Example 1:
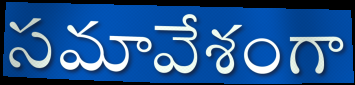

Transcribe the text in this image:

సమావేశంగా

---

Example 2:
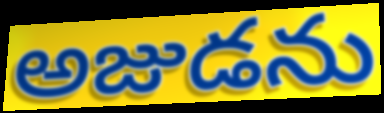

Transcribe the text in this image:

అజుడను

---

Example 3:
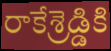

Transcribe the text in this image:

రాకేశ్రెడ్డికి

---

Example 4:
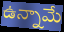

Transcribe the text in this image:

ఉన్నామే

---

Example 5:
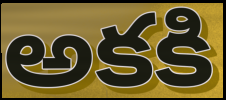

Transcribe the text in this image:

అకకి